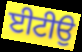
ਈਟੀਉ